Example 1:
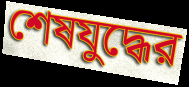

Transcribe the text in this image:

শেষযুদ্ধের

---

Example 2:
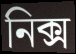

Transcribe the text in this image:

নিক্স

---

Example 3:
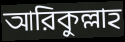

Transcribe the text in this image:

আরিকুল্লাহ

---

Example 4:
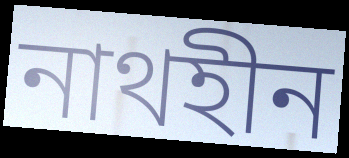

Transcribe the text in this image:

নাথহীন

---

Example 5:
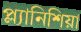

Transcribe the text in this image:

প্ল্যানিশিয়া